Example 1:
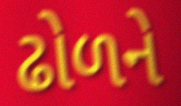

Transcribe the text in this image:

ઢોળને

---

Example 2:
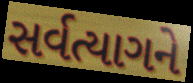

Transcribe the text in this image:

સર્વત્યાગને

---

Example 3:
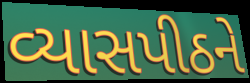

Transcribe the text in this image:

વ્યાસપીઠને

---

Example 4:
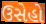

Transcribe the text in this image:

ઉસેહો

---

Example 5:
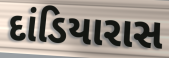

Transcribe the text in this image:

દાંડિયારાસ